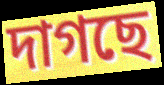
দাগছে